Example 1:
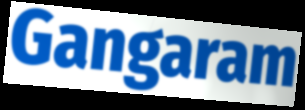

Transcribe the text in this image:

Gangaram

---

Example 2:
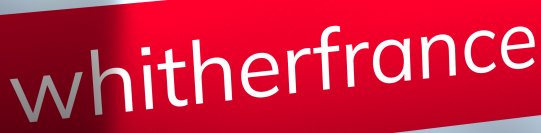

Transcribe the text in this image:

whitherfrance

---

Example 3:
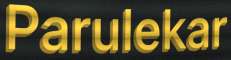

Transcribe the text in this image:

Parulekar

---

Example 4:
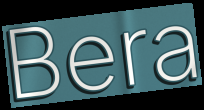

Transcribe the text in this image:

Bera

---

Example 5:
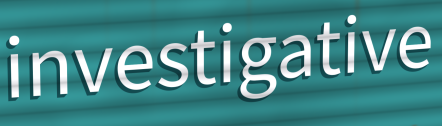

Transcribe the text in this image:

investigative